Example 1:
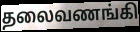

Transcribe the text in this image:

தலைவணங்கி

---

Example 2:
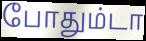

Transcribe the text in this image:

போதும்டா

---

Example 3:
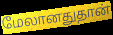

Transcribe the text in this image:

மேலானதுதான்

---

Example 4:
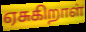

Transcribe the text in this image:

ஏசுகிறாள்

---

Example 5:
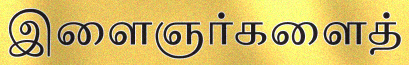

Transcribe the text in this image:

இளைஞர்களைத்